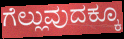
ಗೆಲ್ಲುವುದಕ್ಕೂ